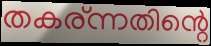
തകര്ന്നതിന്റെ